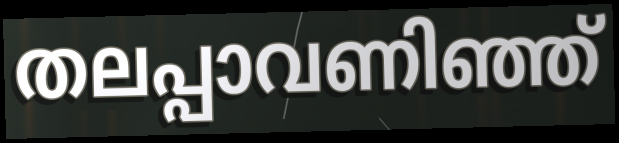
തലപ്പാവണിഞ്ഞ്